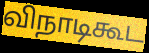
விநாடிகூட